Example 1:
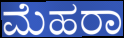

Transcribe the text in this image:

ಮೆಹರಾ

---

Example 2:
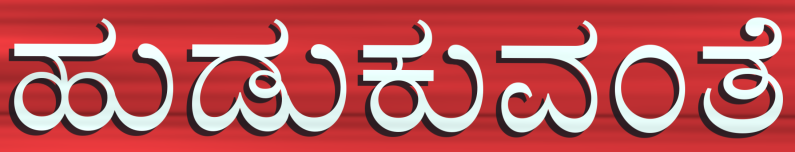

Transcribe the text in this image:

ಹುಡುಕುವಂತೆ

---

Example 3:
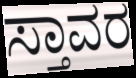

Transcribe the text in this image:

ಸ್ತಾವರ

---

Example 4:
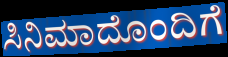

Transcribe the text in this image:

ಸಿನಿಮಾದೊಂದಿಗೆ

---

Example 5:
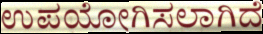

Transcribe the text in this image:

ಉಪಯೋಗಿಸಲಾಗಿದೆ